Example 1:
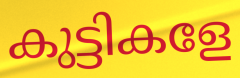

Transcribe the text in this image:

കുട്ടികളേ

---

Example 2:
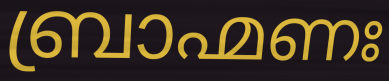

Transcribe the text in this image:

ബ്രാഹ്മണഃ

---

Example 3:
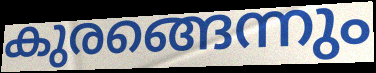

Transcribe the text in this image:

കുരങ്ങെന്നും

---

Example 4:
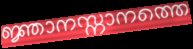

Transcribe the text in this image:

ജ്ഞാനസ്നാനത്തെ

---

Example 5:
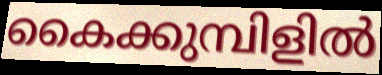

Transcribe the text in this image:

കൈക്കുമ്പിളിൽ